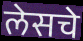
लेसचे